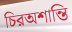
চিরঅশান্তি